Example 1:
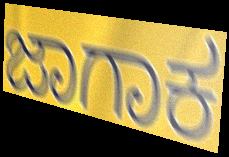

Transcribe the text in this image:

ಜಾಗಾಕ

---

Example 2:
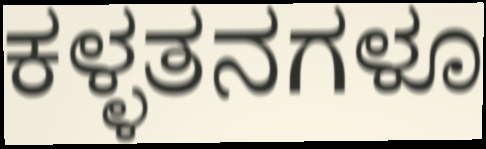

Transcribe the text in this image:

ಕಳ್ಳತನಗಳೂ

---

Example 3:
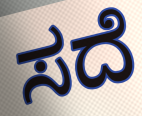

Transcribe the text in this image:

ಸದೆ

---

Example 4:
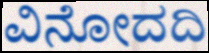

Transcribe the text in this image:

ವಿನೋದದಿ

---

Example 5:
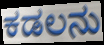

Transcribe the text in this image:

ಕಡಲನು